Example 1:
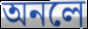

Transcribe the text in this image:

অনলে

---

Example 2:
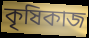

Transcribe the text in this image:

কৃষিকাজ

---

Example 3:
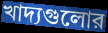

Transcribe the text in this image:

খাদ্যগুলোর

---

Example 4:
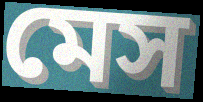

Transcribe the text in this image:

মেস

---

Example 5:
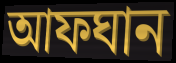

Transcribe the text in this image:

আফঘান